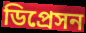
ডিপ্রেসন